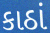
કાઠાં